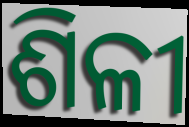
ଶିଳୀ